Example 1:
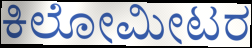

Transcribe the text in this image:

ಕಿಲೋಮೀಟರ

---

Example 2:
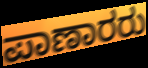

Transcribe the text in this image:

ಪಾಣಾರರು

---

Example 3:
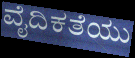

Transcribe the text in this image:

ವೈದಿಕತೆಯು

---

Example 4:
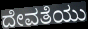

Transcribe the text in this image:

ದೇವತೆಯು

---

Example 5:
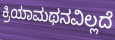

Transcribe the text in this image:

ಕ್ರಿಯಾಮಥನವಿಲ್ಲದೆ